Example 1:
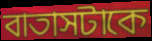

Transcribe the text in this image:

বাতাসটাকে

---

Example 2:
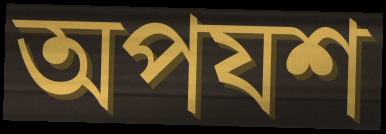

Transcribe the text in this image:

অপযশ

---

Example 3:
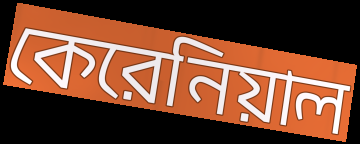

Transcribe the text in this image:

কেরেনিয়াল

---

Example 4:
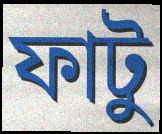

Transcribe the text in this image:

ফাটু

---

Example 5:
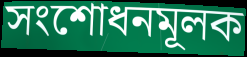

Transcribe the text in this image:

সংশোধনমূলক